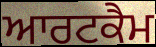
ਆਰਟਕੈਮ